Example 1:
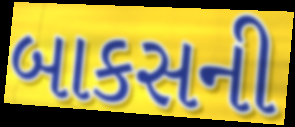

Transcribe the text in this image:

બાકસની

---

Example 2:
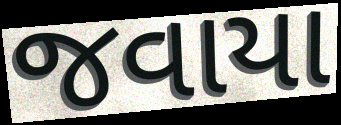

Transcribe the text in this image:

જવાયા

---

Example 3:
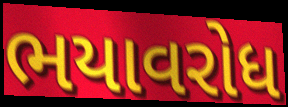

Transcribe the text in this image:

ભયાવરોધ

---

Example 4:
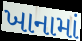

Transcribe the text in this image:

ખાનામાં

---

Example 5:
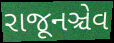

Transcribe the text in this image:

રાજૂનઞ્ચેવ